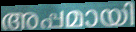
അപ്പമായി